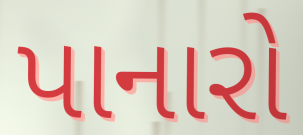
પાનારો